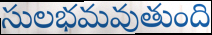
సులభమవుతుంది